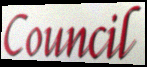
Council